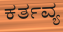
ಕರ್ತವ್ಯ